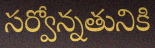
సర్వోన్నతునికి